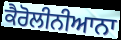
ਕੈਰੋਲੀਨੀਆਨਾ